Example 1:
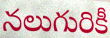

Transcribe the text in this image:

నలుగురికీ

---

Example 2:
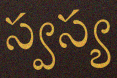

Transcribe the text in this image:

స్వస్య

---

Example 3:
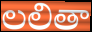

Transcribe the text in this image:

లలితా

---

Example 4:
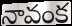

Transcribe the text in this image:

నావంక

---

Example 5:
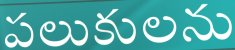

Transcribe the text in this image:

పలుకులను